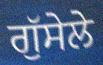
ਗੁੱਸੇਲੇ